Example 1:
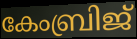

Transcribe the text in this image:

കേംബ്രിജ്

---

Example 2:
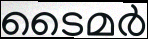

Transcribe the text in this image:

ടൈമർ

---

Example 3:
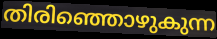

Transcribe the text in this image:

തിരിഞ്ഞൊഴുകുന്ന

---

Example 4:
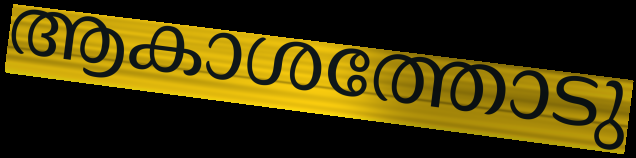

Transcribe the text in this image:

ആകാശത്തോടു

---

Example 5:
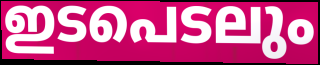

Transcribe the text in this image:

ഇടപെടലും